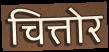
चित्तोर